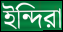
ইন্দিরা